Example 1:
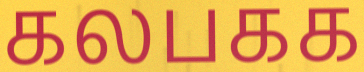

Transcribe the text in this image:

கலபகக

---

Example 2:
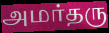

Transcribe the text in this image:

அமர்தரு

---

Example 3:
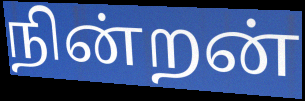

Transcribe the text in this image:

நின்றன்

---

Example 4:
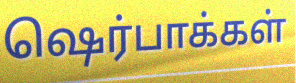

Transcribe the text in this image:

ஷெர்பாக்கள்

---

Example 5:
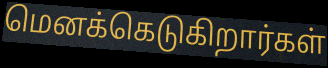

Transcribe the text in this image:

மெனக்கெடுகிறார்கள்